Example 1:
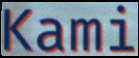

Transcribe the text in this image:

Kami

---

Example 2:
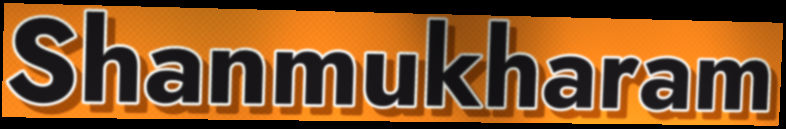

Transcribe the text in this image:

Shanmukharam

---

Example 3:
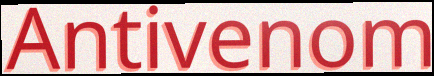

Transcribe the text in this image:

Antivenom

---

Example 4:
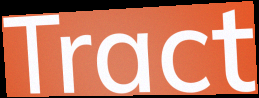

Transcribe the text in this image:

Tract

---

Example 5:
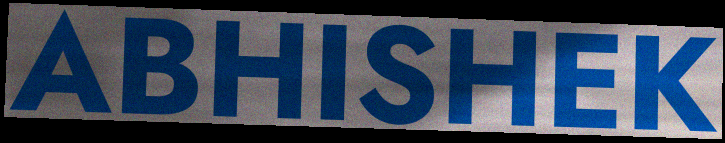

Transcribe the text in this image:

ABHISHEK